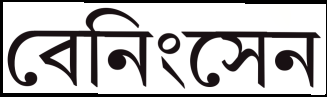
বেনিংসেন